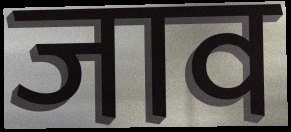
जाव